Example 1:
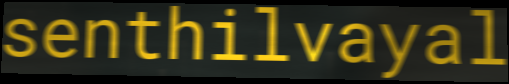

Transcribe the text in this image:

senthilvayal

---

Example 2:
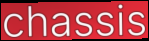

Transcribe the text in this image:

chassis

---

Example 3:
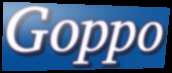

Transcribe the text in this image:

Goppo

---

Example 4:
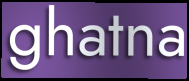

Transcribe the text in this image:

ghatna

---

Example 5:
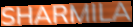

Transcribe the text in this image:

SHARMILA